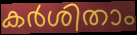
കർശിതാം